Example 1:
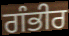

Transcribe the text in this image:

ਗੰਭੀਰ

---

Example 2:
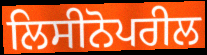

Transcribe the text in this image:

ਲਿਸੀਨੋਪਰੀਲ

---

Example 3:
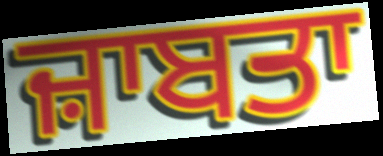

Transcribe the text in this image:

ਜ਼ਾਬਤਾ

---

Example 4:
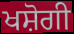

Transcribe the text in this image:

ਖਸ਼ੋਗੀ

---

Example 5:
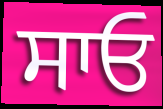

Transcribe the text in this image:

ਸਾਓ